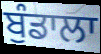
ਬੁੰਡਾਲਾ